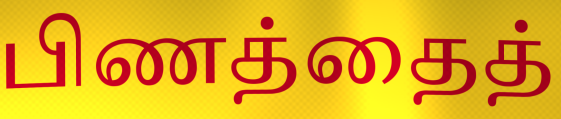
பிணத்தைத்